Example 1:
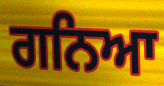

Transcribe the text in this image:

ਗਨਿਆ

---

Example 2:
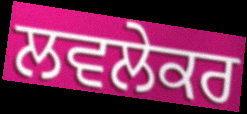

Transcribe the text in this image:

ਲਵਲੇਕਰ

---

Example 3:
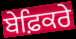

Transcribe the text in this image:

ਬੇਫ਼ਿਕਰੇ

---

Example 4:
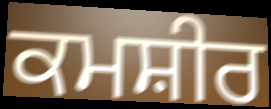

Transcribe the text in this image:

ਕਮਸ਼ੀਰ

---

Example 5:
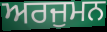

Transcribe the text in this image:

ਅਰਜੁਮਨ